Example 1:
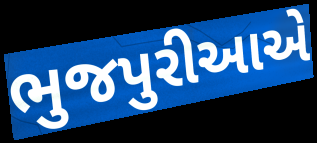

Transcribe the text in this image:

ભુજપુરીઆએ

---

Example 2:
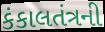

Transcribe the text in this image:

કંકાલતંત્રની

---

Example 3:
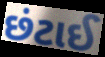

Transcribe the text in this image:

છંટાઈ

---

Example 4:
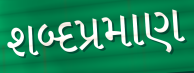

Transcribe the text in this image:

શબ્દપ્રમાણ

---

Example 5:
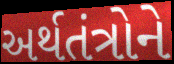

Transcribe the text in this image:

અર્થતંત્રોને